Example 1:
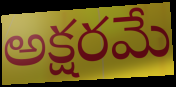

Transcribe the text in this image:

అక్షరమే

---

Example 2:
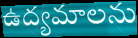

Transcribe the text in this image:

ఉద్యమాలను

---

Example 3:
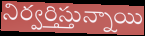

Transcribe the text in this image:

నిర్వర్తిస్తున్నాయి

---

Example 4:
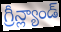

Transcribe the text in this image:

గ్రీన్ల్యాండ్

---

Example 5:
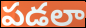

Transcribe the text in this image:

పడలా